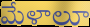
మేళాలూ